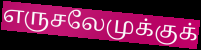
எருசலேமுக்குக்